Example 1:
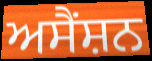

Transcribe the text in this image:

ਅਸੈਂਸ਼ਨ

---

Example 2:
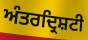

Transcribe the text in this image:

ਅੰਤਰਦ੍ਰਿਸ਼ਟੀ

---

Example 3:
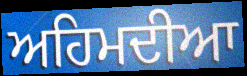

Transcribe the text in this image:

ਅਹਿਮਦੀਆ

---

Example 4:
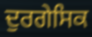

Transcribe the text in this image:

ਦੁਰਗੇਸਿਕ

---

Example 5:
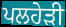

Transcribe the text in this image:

ਪਲਹੇੜੀ